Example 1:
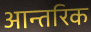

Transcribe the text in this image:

आन्तरिक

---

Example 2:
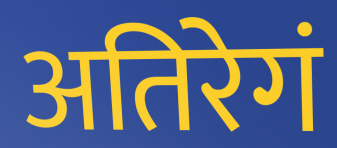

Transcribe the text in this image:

अतिरेगं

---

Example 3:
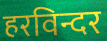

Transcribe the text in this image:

हरविन्दर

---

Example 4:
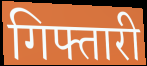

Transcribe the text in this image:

गिफ्तारी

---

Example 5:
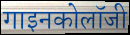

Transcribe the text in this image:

गाइनकोलॉजी